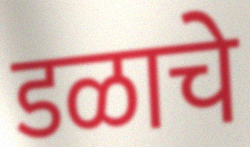
डळाचे